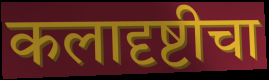
कलादृष्टीचा